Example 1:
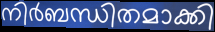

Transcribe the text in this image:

നിർബന്ധിതമാക്കി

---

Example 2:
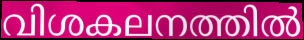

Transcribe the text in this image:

വിശകലനത്തിൽ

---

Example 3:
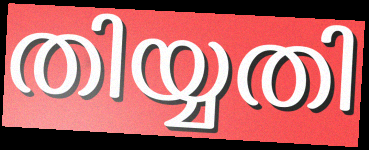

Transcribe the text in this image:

തിയ്യതി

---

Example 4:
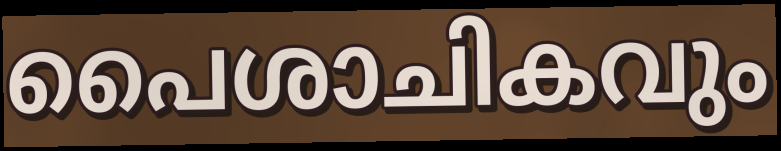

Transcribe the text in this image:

പൈശാചികവും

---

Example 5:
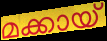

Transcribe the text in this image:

മക്കായ്